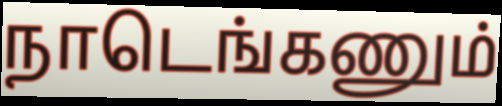
நாடெங்கணும்